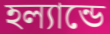
হল্যান্ডে